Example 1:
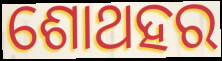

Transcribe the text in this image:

ଶୋଥହର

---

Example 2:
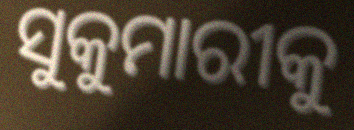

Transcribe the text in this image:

ସୁକୁମାରୀକୁ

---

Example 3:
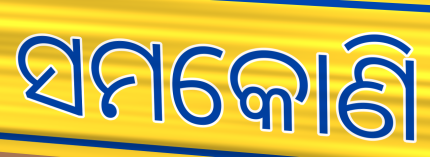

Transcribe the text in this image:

ସମକୋଣି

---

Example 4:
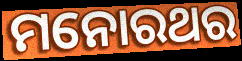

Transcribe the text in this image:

ମନୋରଥର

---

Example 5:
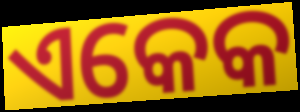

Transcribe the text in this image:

ଏକେକ